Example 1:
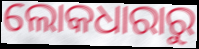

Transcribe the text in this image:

ଲୋକଧାରାରୁ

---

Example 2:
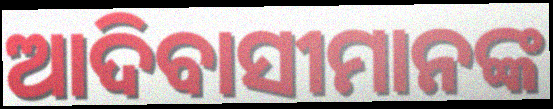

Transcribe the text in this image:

ଆଦିବାସୀମାନଙ୍କ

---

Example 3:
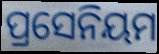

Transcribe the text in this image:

ପ୍ରସେନିୟମ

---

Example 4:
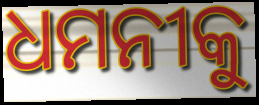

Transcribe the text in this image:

ଧମନୀକୁ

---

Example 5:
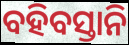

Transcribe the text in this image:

ବହିବସ୍ତାନି